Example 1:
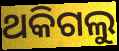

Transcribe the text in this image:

ଥକିଗଲୁ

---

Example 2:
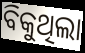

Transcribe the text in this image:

ବିକୁଥିଲା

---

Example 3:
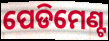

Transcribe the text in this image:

ପେଡିମେଣ୍ଟ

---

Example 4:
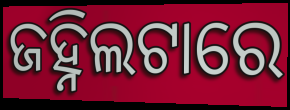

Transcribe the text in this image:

ଜହ୍ନିଲଟାରେ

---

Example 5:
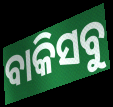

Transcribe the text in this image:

ବାକିସବୁ